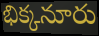
భిక్కనూరు